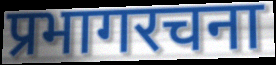
प्रभागरचना